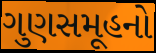
ગુણસમૂહનો